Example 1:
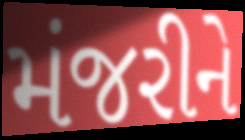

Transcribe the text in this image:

મંજરીને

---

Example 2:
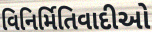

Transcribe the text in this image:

વિનિર્મિતિવાદીઓ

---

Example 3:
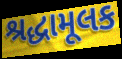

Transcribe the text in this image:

શ્રદ્ધામૂલક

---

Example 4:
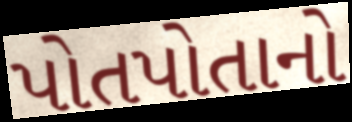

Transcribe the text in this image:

પોતપોતાનો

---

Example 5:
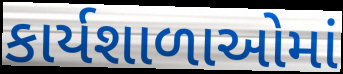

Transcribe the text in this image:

કાર્યશાળાઓમાં